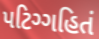
પટિગ્ગહિતં